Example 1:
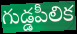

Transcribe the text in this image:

గుడ్డపీలిక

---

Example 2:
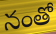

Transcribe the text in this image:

నంతో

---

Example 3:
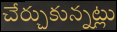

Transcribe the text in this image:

చేర్చుకున్నట్లు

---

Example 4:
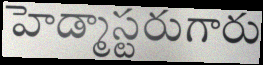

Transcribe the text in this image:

హెడ్మాస్టరుగారు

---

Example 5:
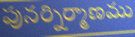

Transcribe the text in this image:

పునర్నిర్మాణము